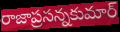
రాజాప్రసన్నకుమార్